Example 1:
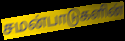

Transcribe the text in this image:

சமன்பாடுகளின்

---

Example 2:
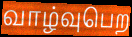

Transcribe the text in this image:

வாழ்வுபெற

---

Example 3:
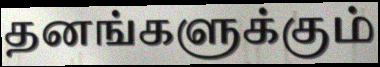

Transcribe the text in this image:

தனங்களுக்கும்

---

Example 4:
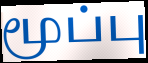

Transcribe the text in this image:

மூப்பு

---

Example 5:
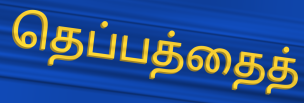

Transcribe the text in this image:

தெப்பத்தைத்